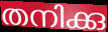
തനിക്കു